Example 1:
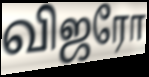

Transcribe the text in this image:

விஜரோ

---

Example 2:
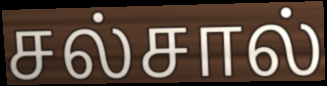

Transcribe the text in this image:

சல்சால்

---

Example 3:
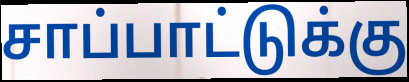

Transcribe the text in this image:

சாப்பாட்டுக்கு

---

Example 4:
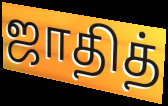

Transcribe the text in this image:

ஜாதித்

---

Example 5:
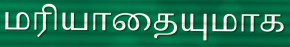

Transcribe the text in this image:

மரியாதையுமாக